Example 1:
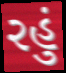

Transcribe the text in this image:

રહું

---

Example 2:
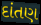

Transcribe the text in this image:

દાંતણ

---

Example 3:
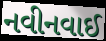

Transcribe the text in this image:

નવીનવાઈ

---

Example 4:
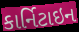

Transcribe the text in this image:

કાર્નિટાઇન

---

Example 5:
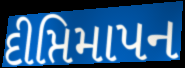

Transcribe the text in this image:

દીપ્તિમાપન